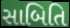
સાબિતિ